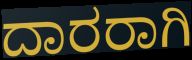
ದಾರರಾಗಿ